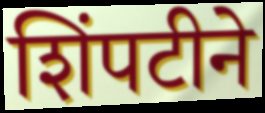
शिंपटीने